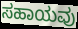
ಸಹಾಯವು